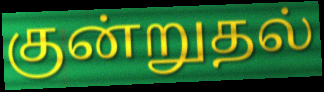
குன்றுதல்